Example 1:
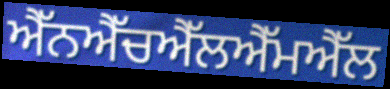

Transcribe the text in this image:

ਐੱਨਐੱਚਐੱਲਐੱਮਐੱਲ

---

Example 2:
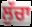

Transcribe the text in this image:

ਲੁੱਚਾ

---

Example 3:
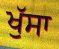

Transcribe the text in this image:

ਖੁੱਸਾ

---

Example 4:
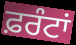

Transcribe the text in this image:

ਫ਼ਰੰਟਾਂ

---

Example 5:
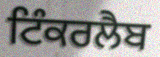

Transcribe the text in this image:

ਟਿੰਕਰਲੈਬ